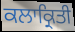
ਕਲਾਕ੍ਰਿਤੀ